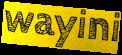
wayini